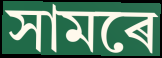
সামৰে